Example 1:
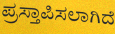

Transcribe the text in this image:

ಪ್ರಸ್ತಾಪಿಸಲಾಗಿದೆ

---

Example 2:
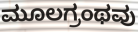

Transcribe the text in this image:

ಮೂಲಗ್ರಂಥವು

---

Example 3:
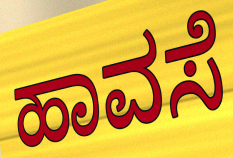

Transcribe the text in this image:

ಹಾವಸೆ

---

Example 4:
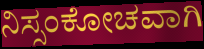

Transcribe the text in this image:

ನಿಸ್ಸಂಕೋಚವಾಗಿ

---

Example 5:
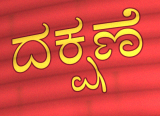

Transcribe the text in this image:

ದಕ್ಷಣೆ